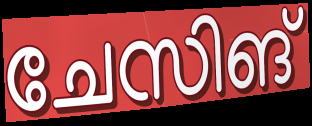
ചേസിങ്